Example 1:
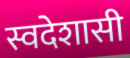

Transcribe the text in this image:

स्वदेशासी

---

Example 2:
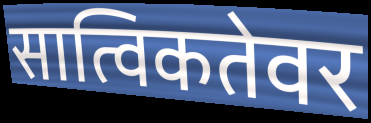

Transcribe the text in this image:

सात्विकतेवर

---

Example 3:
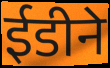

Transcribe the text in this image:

ईडीने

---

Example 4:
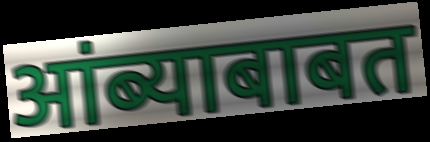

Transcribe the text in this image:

आंब्याबाबत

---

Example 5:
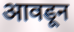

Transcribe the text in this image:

आवडून